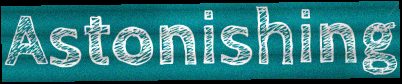
Astonishing